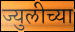
ज्युलीच्या